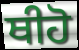
ਥੀਹੋ